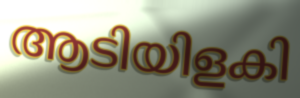
ആടിയിളകി